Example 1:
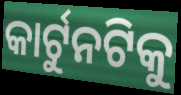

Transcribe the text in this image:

କାର୍ଟୁନଟିକୁ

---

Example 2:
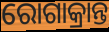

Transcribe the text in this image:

ରୋଗାକ୍ରାନ୍ତ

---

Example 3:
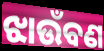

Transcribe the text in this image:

ଝାଉଁବଣ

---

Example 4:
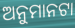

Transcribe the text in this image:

ଅନୁମାନଟା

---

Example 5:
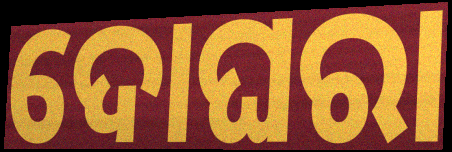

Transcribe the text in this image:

ଦୋଘରା